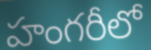
హంగరీలో